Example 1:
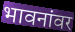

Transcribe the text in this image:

भावनांवर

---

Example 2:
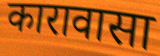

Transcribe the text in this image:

कारावासा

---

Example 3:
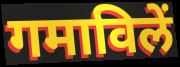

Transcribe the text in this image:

गमाविलें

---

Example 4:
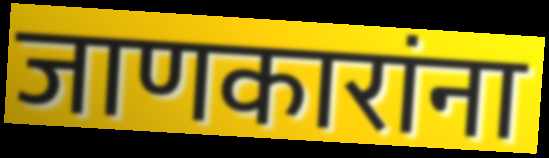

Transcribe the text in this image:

जाणकारांना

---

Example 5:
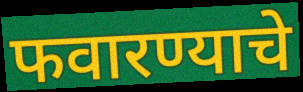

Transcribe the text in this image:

फवारण्याचे